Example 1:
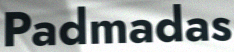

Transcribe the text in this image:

Padmadas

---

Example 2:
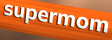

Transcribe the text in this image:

supermom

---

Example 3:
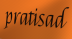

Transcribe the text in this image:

pratisad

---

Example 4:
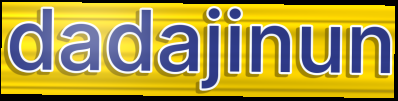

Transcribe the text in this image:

dadajinun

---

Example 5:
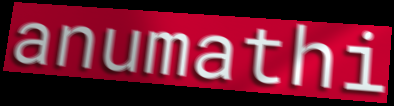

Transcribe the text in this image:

anumathi